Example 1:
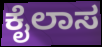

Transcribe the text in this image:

ಕೈಲಾಸ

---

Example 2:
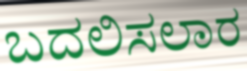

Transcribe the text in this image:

ಬದಲಿಸಲಾರ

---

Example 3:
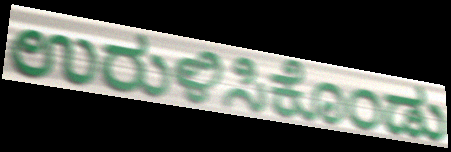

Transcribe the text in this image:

ಉರುಳಿಸಿಕೊಂಡು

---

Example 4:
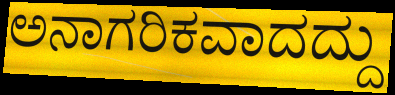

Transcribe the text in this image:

ಅನಾಗರಿಕವಾದದ್ದು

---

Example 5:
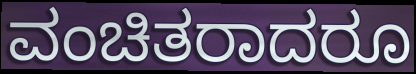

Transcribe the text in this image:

ವಂಚಿತರಾದರೂ